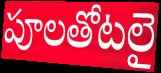
పూలతోటలై